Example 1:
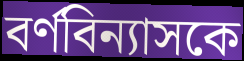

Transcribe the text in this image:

বর্ণবিন্যাসকে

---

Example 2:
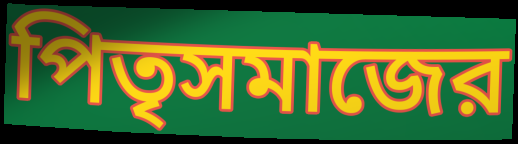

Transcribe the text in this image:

পিতৃসমাজের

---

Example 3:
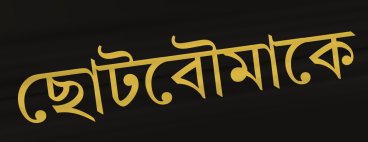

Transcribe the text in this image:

ছোটবৌমাকে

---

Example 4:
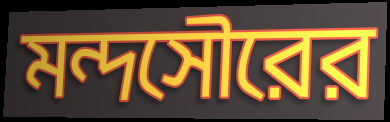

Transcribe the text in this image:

মন্দসৌরের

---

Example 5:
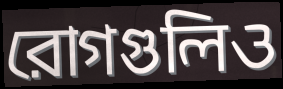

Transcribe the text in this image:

রোগগুলিও